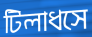
টিলাধসে